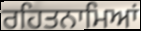
ਰਹਿਤਨਾਮਿਆਂ